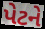
પેટને